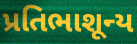
પ્રતિભાશૂન્ય